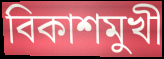
বিকাশমুখী